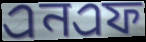
এনএফ